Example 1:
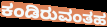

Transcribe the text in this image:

ಕಂಡಿರುವಂತಹ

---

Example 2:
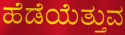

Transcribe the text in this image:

ಹೆಡೆಯೆತ್ತುವ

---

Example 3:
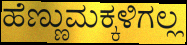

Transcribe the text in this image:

ಹೆಣ್ಣುಮಕ್ಕಳಿಗಲ್ಲ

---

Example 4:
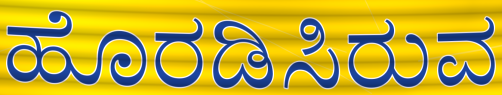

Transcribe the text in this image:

ಹೊರಡಿಸಿರುವ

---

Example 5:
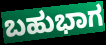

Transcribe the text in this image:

ಬಹುಭಾಗ